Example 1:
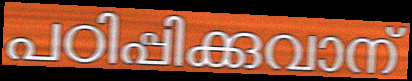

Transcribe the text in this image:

പഠിപ്പിക്കുവാന്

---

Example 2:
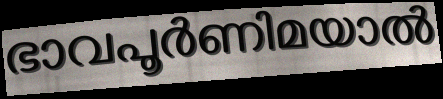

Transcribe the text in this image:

ഭാവപൂർണിമയാൽ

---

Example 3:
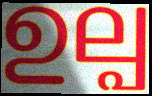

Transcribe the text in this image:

ഉല്പ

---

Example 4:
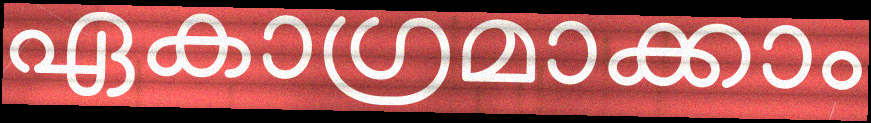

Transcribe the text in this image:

ഏകാഗ്രമാക്കാം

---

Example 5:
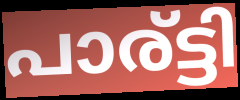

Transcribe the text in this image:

പാര്ട്ടി